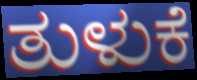
ತುಳುಕೆ